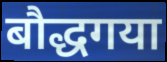
बौद्धगया